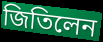
জিতিলেন